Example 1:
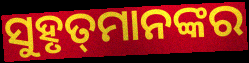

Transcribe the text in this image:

ସୁହୃତ୍‌ମାନଙ୍କର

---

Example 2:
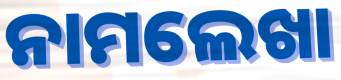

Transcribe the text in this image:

ନାମଲେଖା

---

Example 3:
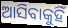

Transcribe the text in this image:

ଆସିବାକୁହିଁ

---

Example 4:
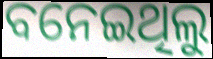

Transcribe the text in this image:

ବନେଇଥିଲୁ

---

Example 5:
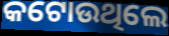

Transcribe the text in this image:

କଟୋଉଥିଲେ